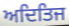
ਅਦਿਤਿਜ